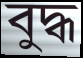
বুদ্ধ